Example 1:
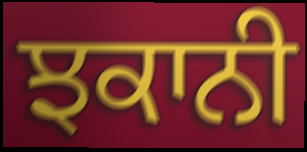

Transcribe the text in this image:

ਝਕਾਨੀ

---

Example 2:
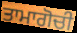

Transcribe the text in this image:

ਤਾਮਾਗੋਚੀ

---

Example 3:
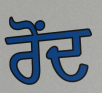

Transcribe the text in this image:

ਰੋਂਦ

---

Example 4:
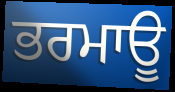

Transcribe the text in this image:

ਭਰਮਾਊ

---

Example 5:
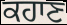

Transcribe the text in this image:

ਕਹਾਣ